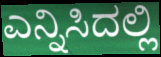
ಎನ್ನಿಸಿದಲ್ಲಿ